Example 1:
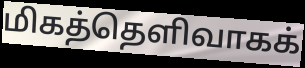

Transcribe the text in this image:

மிகத்தெளிவாகக்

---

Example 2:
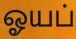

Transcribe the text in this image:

ஓயப்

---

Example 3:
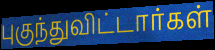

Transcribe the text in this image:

புகுந்துவிட்டார்கள்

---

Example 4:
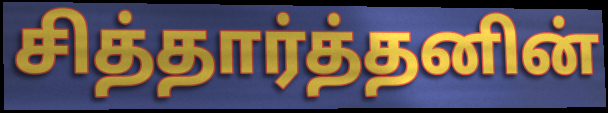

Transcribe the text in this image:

சித்தார்த்தனின்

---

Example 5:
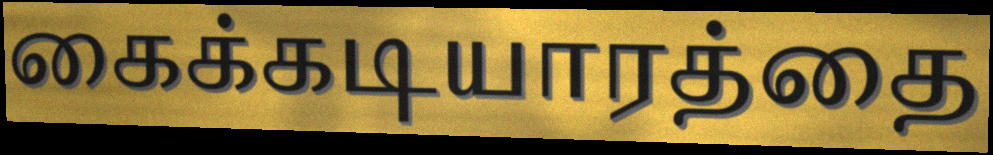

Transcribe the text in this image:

கைக்கடியாரத்தை